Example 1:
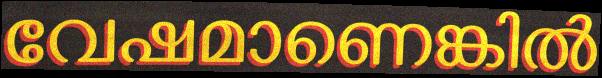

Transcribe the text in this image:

വേഷമാണെങ്കിൽ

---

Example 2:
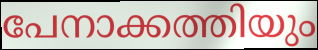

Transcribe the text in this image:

പേനാക്കത്തിയും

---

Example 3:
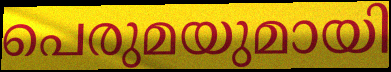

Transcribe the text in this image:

പെരുമയുമായി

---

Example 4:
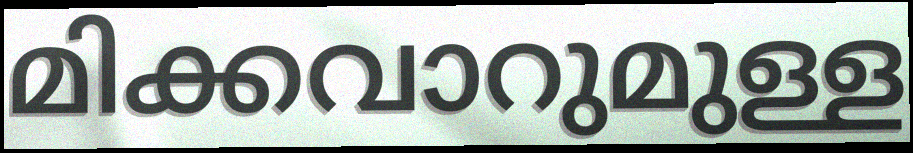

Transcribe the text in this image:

മിക്കവാറുമുള്ള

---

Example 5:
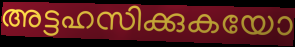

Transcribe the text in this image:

അട്ടഹസിക്കുകയോ